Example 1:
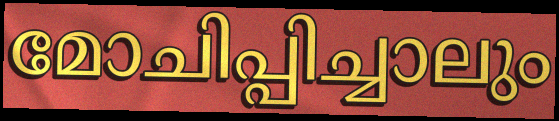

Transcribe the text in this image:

മോചിപ്പിച്ചാലും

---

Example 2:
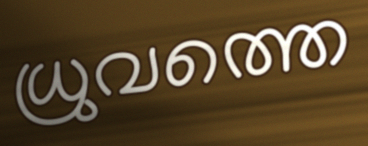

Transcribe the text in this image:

ധ്രുവത്തെ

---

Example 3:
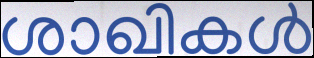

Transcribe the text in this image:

ശാഖികൾ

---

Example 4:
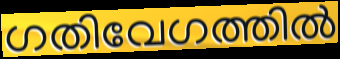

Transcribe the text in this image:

ഗതിവേഗത്തിൽ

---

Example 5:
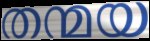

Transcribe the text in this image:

തന്മയ